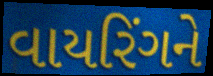
વાયરિંગને